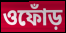
ওফোঁড়